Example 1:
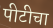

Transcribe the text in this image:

पीटीचा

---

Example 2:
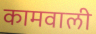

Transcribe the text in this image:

कामवाली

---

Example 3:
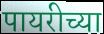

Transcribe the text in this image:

पायरीच्या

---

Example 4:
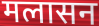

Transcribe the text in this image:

मलासन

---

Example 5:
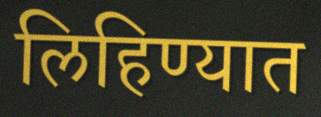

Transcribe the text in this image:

लिहिण्यात